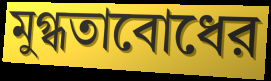
মুগ্ধতাবোধের